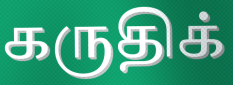
கருதிக்